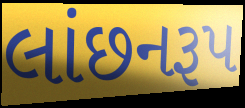
લાંછનરૂપ